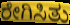
ರೇಗಿಸಿತು